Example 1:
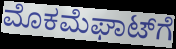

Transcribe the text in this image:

ಮೊಕಮೆಘಾಟ್‌ಗೆ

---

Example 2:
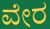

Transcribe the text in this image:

ವೇರ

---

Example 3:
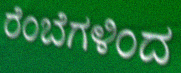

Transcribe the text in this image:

ರೆಂಬೆಗಳಿಂದ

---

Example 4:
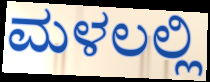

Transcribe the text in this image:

ಮಳಲಲ್ಲಿ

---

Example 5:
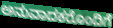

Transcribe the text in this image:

ಅನುವಾದಕರೊಂದಿಗೆ